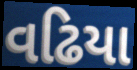
વઢિયા